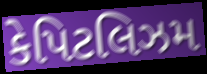
કેપિટલિઝમ